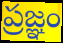
ప్రజ్ఞం